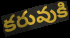
కరువుకి